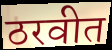
ठरवीत